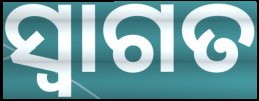
ସ୍ବାଗତ